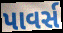
પાવર્સ